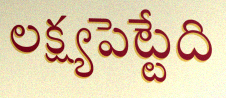
లక్ష్యపెట్టేది